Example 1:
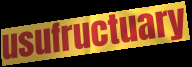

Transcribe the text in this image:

usufructuary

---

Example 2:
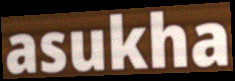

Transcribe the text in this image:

asukha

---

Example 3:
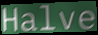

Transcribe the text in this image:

Halve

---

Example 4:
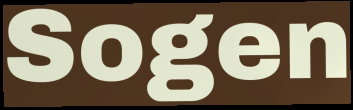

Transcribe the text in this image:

Sogen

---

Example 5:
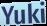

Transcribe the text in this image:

Yuki